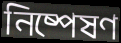
নিষ্পেষণ